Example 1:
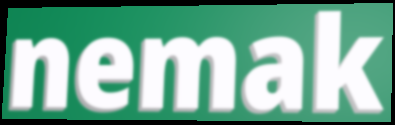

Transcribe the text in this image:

nemak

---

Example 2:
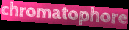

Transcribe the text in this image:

chromatophore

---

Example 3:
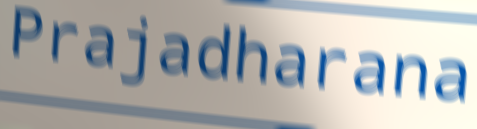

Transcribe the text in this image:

Prajadharana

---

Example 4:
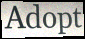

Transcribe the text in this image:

Adopt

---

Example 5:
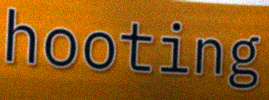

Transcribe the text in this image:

hooting